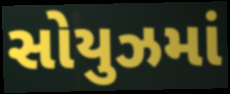
સોયુઝમાં